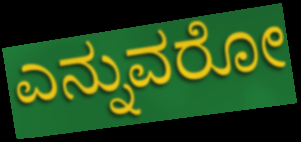
ಎನ್ನುವರೋ